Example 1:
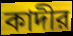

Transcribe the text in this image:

কাদীর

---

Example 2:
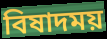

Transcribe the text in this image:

বিষাদময়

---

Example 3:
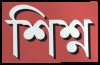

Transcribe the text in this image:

শিশ্ন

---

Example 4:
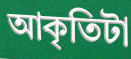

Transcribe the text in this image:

আকৃতিটা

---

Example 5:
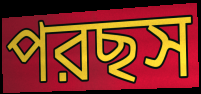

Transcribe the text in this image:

পরছস